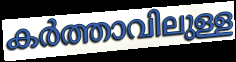
കർത്താവിലുള്ള